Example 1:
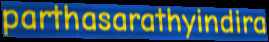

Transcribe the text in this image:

parthasarathyindira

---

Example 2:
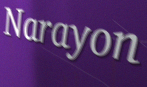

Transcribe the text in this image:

Narayon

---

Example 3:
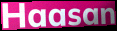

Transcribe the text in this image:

Haasan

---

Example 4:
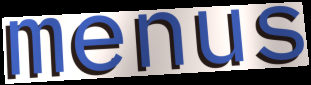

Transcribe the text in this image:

menus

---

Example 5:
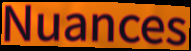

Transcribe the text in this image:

Nuances